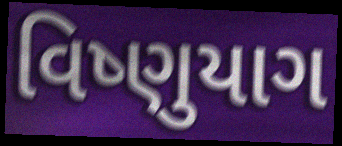
વિષ્ણુયાગ